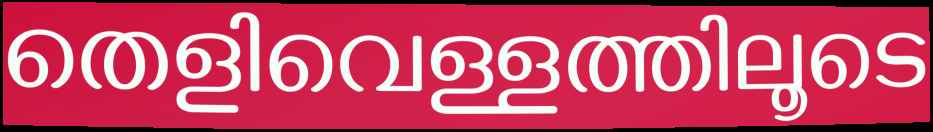
തെളിവെള്ളത്തിലൂടെ